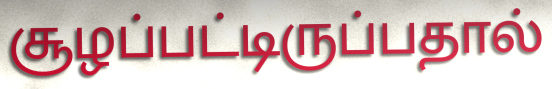
சூழப்பட்டிருப்பதால்